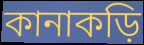
কানাকড়ি